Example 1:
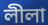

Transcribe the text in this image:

লীলা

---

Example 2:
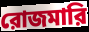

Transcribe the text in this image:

রোজমারি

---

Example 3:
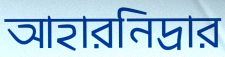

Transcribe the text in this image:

আহারনিদ্রার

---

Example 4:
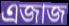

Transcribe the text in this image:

এজাজ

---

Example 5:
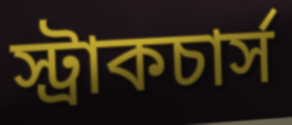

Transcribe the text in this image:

স্ট্রাকচার্স